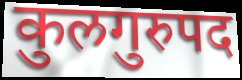
कुलगुरुपद